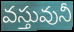
వస్తువునీ